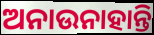
ଅନାଉନାହାନ୍ତି